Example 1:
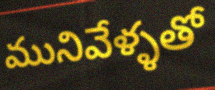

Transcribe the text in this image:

మునివేళ్ళతో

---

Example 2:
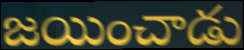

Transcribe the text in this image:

జయించాడు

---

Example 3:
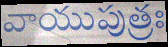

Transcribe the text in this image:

వాయుపుత్రః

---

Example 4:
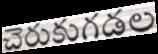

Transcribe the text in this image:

చెరుకుగడల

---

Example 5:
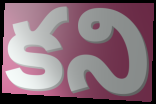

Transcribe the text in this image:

కని